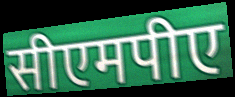
सीएमपीए